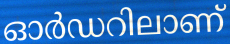
ഓർഡറിലാണ്